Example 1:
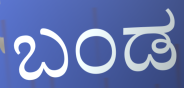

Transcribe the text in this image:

ಬಂಡ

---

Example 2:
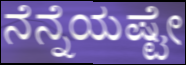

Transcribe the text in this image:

ನೆನ್ನೆಯಷ್ಟೇ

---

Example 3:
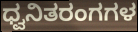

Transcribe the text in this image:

ಧ್ವನಿತರಂಗಗಳ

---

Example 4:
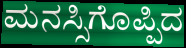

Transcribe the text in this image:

ಮನಸ್ಸಿಗೊಪ್ಪಿದ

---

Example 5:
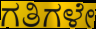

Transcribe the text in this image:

ಗತಿಗಳೇ